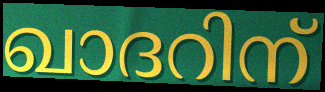
ഖാദറിന്